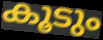
കൂടും